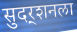
सुदर्शनला